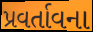
પ્રવર્તાવના